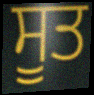
ਸੂਤ